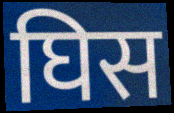
घिस